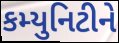
કમ્યુનિટીને